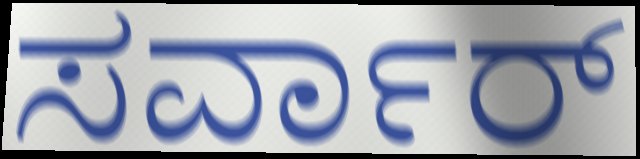
ಸರ್ವಾರ್